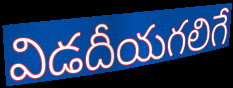
విడదీయగలిగే